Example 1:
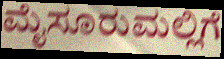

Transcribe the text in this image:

ಮೈಸೂರುಮಲ್ಲಿಗೆ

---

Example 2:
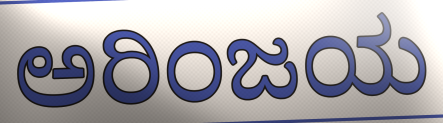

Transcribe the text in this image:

ಅರಿಂಜಯ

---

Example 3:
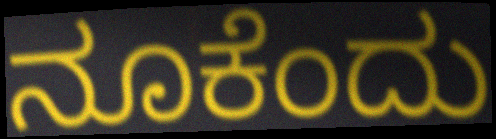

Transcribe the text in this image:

ನೂಕೆಂದು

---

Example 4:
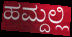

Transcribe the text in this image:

ಹಮ್ದಲ್ಲಿ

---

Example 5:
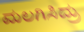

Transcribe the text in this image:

ಮಲಗಿಸಿದ್ರು